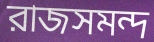
রাজসমন্দ